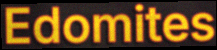
Edomites